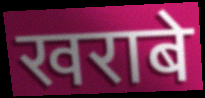
खराबे